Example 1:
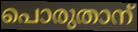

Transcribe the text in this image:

പൊരുതാന്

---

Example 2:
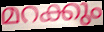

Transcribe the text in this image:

മറക്കും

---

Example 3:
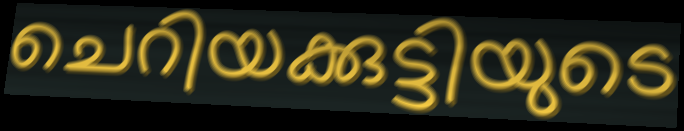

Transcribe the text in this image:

ചെറിയക്കുട്ടിയുടെ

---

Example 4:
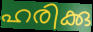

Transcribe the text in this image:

ഹരിക്കു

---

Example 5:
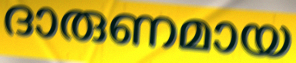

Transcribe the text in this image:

ദാരുണമായ